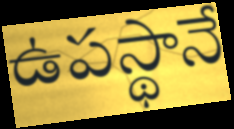
ఉపస్థానే